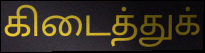
கிடைத்துக்